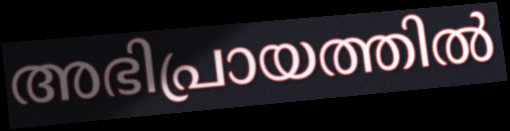
അഭിപ്രായത്തിൽ